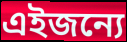
এইজন্যে